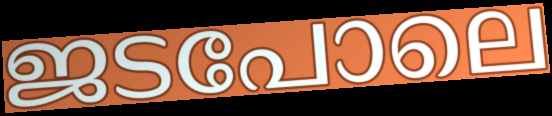
ജടപോലെ